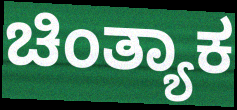
ಚಿಂತ್ಯಾಕ